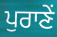
ਪੁਰਾਣੇਂ